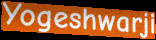
Yogeshwarji